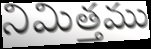
నిమిత్తము